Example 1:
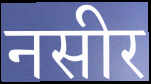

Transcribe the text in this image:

नसीर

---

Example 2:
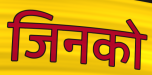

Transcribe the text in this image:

जिनको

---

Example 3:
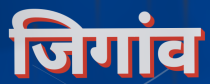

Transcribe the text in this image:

जिगांव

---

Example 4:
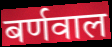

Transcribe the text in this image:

बर्णवाल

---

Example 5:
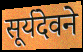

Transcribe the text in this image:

सूर्यदेवने